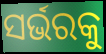
ସର୍ଭରକୁ